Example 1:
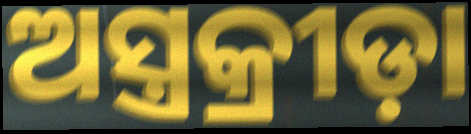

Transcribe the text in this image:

ଅସ୍ତ୍ରକ୍ରୀଡ଼ା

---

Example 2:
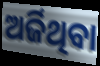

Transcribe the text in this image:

ଅର୍ଜିଥିବା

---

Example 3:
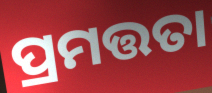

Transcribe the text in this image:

ପ୍ରମତ୍ତତା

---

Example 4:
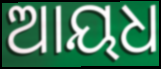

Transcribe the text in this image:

ଆୟଧ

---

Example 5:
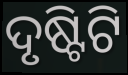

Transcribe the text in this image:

ଦୃଷ୍ଟିଟି